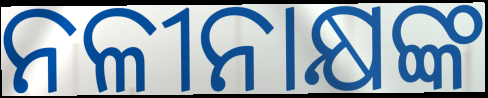
ନଳୀନାକ୍ଷଙ୍କ